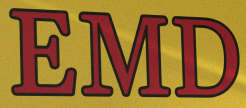
EMD